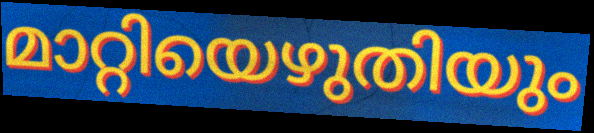
മാറ്റിയെഴുതിയും